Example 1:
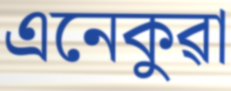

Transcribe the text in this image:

এনেকুৱা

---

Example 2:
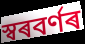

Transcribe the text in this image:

স্বৰবৰ্ণৰ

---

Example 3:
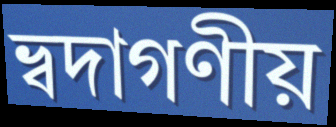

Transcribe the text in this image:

ভ্বদাগণীয়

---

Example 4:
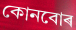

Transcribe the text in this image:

কোনবোৰ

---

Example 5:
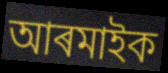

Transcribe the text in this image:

আৰমাইক